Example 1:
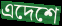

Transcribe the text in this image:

এদেশে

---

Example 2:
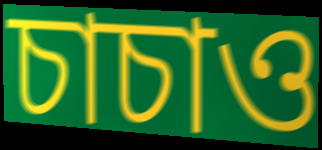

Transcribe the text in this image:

চাচাও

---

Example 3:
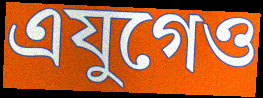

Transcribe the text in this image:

এযুগেও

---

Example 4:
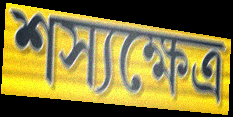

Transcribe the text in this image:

শস্যক্ষেত্র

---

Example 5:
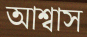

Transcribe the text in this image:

আশ্বাস